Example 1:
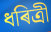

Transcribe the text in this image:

ধৰিত্ৰী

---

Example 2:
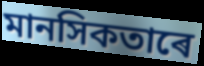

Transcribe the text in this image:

মানসিকতাৰে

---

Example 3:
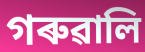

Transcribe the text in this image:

গৰুৱালি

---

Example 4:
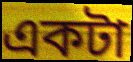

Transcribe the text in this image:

একটা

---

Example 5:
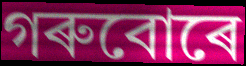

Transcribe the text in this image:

গৰুবোৰে